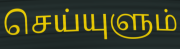
செய்யுளும்